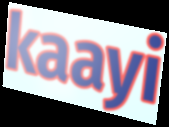
kaayi